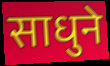
साधुने